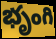
భృంగి